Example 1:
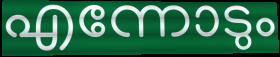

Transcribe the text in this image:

എന്നോടും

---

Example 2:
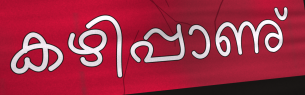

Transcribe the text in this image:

കഴിപ്പാണു്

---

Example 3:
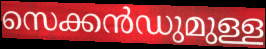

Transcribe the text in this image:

സെക്കൻഡുമുള്ള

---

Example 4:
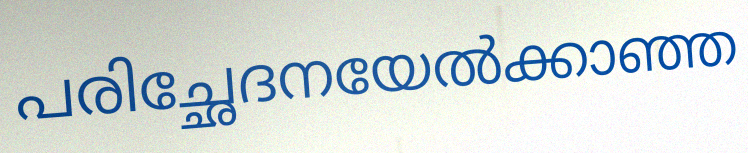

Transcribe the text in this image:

പരിച്ഛേദനയേൽക്കാഞ്ഞ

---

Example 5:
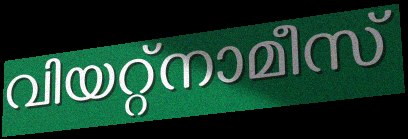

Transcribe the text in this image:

വിയറ്റ്നാമീസ്